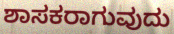
ಶಾಸಕರಾಗುವುದು